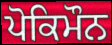
ਪੋਕਿਮੌਨ